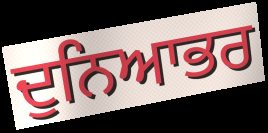
ਦੁਨਿਆਭਰ